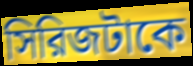
সিরিজটাকে